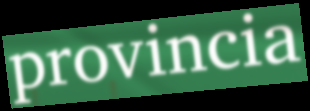
provincia